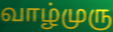
வாழ்முரு